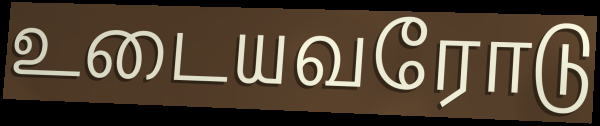
உடையவரோடு